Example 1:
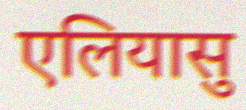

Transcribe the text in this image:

एलियासु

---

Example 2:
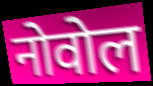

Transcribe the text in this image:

नोवोल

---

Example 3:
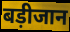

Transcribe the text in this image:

बड़ीजान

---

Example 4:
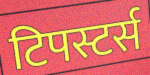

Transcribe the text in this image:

टिपस्टर्स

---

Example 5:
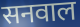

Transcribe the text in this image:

सनवाल